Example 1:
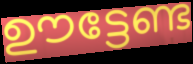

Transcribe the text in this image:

ഊട്ടേണ്ട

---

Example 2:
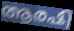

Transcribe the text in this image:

ആരഷി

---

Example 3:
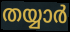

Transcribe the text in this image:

തയ്യാർ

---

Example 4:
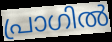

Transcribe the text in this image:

പ്രാഗിൽ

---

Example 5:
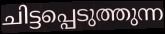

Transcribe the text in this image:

ചിട്ടപ്പെടുത്തുന്ന